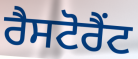
ਰੈਸਟੋਰੈਂਟ